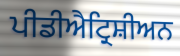
ਪੀਡੀਐਟ੍ਰਿਸ਼ੀਅਨ